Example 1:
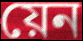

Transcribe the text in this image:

য়েন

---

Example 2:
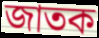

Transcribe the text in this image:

জাতক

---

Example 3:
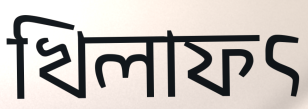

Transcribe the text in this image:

খিলাফৎ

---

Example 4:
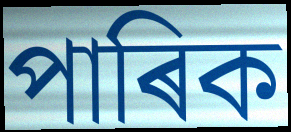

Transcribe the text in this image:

পাৰিক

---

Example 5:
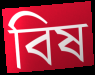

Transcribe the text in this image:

বিষ